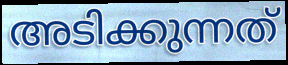
അടിക്കുന്നത്